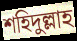
শহিদুল্লাহ